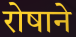
रोषाने